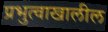
प्रभुत्वाखालील